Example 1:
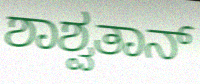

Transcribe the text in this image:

ಶಾಶ್ವತಾನ್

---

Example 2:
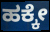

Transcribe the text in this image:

ಹಕ್ಕೇ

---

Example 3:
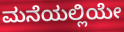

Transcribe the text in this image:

ಮನೆಯಲ್ಲಿಯೇ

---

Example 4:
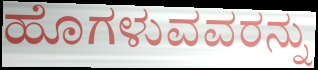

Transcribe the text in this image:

ಹೊಗಳುವವರನ್ನು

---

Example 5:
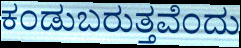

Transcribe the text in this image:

ಕಂಡುಬರುತ್ತವೆಂದು